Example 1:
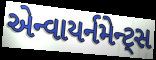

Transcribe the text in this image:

એન્વાયર્નમેન્ટ્સ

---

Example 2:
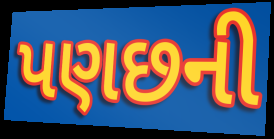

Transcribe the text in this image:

પણછની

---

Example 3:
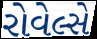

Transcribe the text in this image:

રોવેલ્સે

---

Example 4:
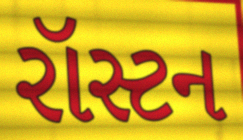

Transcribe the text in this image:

રૉસ્ટન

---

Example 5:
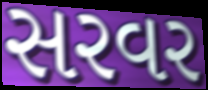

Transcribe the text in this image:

સરવર